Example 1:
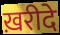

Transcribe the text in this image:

ख़रीदे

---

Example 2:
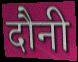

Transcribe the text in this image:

दौनी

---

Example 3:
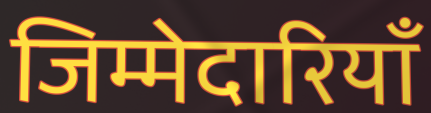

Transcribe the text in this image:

जिम्मेदारियॉं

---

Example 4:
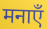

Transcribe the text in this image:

मनाएँ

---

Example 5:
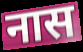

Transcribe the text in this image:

नास